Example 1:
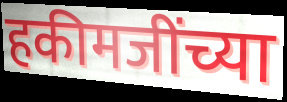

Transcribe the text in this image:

हकीमजींच्या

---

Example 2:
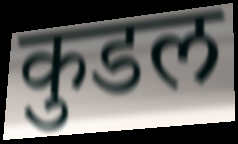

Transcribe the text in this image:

कुडल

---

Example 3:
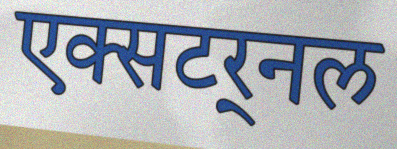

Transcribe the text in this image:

एक्सटर्नल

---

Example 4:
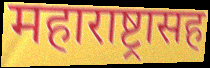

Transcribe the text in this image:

महाराष्ट्रासह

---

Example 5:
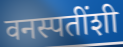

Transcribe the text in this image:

वनस्पतींशी